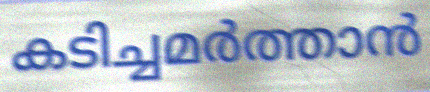
കടിച്ചമർത്താൻ